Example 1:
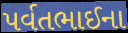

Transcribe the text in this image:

પર્વતભાઈના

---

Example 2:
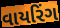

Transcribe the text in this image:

વાયરિંગ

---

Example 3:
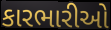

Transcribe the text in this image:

કારભારીઓ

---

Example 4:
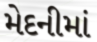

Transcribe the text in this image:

મેદનીમાં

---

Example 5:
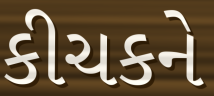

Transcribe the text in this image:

કીચકને